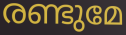
രണ്ടുമേ